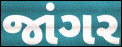
જાંગર